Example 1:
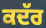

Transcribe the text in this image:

ਕਦੱਰ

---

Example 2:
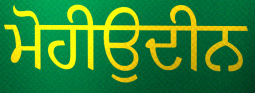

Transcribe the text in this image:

ਮੋਹੀਉਦੀਨ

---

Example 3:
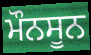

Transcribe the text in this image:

ਮੌਨਸੂਨ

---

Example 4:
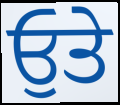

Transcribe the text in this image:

ਓੁਤੇ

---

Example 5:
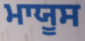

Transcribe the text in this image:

ਮਾਯੂਸ